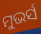
ମୁଭର୍ସ